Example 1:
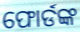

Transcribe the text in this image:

ଫୋର୍ଡଙ୍କ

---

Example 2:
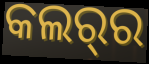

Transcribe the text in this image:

କଲର୍‌ର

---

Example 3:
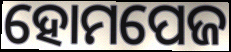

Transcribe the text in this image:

ହୋମପେଜ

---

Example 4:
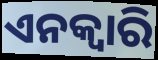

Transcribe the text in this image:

ଏନକ୍ଵାରି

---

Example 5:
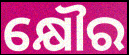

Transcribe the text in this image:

କ୍ଷୌର